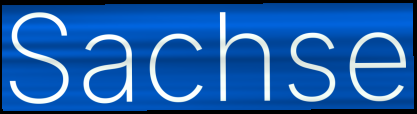
Sachse